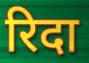
रिदा